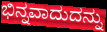
ಭಿನ್ನವಾದುದನ್ನು